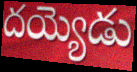
దయ్యెడు